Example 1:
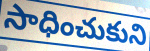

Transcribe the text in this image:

సాధించుకుని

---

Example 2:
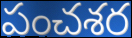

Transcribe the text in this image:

పంచశర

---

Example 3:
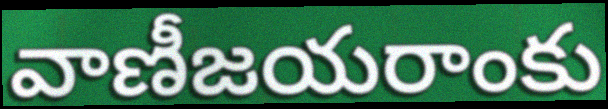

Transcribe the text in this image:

వాణీజయరాంకు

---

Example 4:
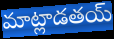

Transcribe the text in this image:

మాట్లాడతయ్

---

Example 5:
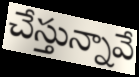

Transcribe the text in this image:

చేస్తున్నావే